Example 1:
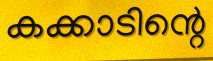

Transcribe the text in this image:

കക്കാടിന്റെ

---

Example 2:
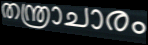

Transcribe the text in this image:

തന്ത്രാചാരം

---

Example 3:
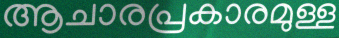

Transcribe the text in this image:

ആചാരപ്രകാരമുള്ള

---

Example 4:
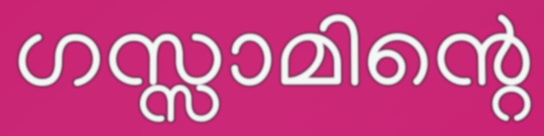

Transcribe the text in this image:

ഗസ്സാമിന്റെ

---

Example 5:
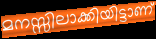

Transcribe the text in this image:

മനസ്സിലാക്കിയിട്ടാണ്